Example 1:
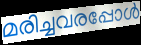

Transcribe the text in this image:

മരിച്ചവരപ്പോൾ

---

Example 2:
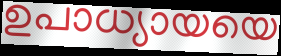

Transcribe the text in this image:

ഉപാധ്യായയെ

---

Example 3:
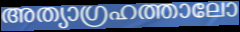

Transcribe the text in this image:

അത്യാഗ്രഹത്താലോ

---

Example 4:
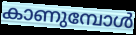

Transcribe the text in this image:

കാണുമ്പോൾ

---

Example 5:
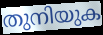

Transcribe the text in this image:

തുനിയുക